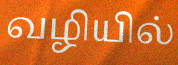
வழியில்